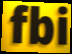
fbi